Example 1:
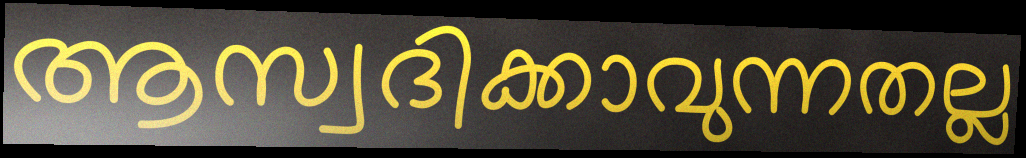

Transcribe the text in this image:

ആസ്വദിക്കാവുന്നതല്ല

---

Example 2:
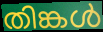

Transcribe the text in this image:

തിങ്കൾ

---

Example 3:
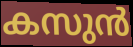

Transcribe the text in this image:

കസുൻ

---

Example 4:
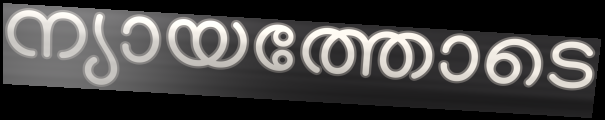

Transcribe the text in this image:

ന്യായത്തോടെ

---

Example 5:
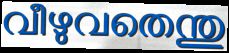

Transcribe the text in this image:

വീഴുവതെന്തു